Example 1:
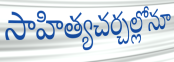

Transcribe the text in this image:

సాహిత్యచర్చల్లోనూ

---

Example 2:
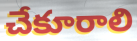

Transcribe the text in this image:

చేకూరాలి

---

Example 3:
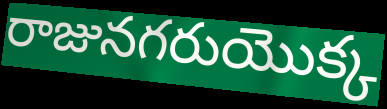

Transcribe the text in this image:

రాజునగరుయొక్క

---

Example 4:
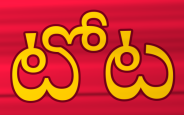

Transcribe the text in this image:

టోట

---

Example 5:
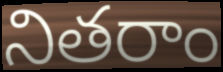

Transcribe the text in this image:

నితరాం